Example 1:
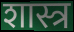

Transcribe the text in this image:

शास्त्र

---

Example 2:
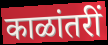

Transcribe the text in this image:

काळांतरीं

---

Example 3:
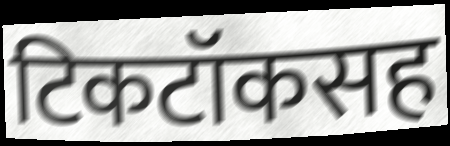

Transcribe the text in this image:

टिकटॉकसह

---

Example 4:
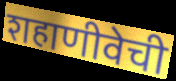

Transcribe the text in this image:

शहाणीवेची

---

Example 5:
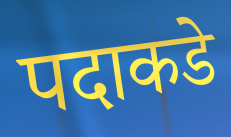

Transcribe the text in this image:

पदाकडे